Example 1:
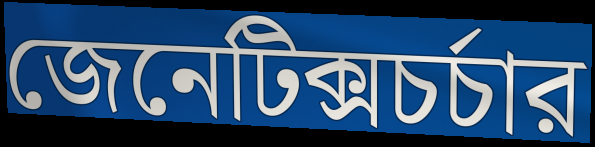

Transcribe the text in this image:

জেনেটিক্সচর্চার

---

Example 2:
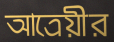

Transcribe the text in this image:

আত্রেয়ীর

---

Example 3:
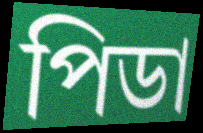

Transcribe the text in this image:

পিডা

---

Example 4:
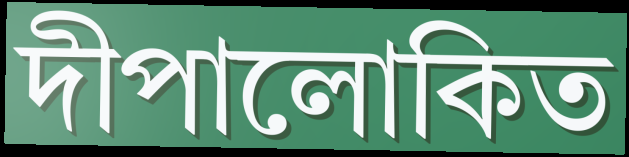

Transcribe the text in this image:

দীপালোকিত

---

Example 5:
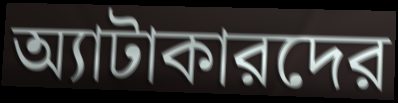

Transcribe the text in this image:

অ্যাটাকারদের